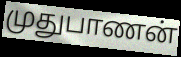
முதுபாணன்